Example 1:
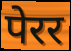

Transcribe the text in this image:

पेरर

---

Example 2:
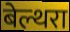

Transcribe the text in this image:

बेल्थरा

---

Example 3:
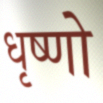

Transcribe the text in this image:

धृष्णो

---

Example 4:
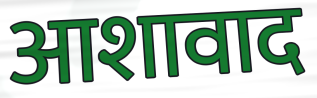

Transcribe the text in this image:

आशावाद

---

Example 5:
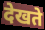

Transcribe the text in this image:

देखते